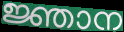
ജ്ഞാന